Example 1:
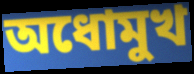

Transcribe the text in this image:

অধোমুখ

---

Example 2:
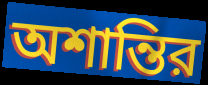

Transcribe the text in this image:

অশান্তির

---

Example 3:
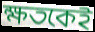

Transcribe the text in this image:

ক্ষতকেই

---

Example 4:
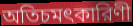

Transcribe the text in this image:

অতিচমৎকারিণী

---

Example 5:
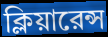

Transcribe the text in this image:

ক্লিয়ারেন্স